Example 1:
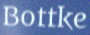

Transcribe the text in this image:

Bottke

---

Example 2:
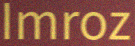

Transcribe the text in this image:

Imroz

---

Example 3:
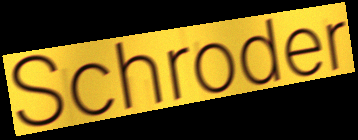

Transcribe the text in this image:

Schroder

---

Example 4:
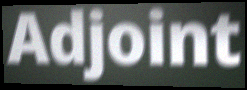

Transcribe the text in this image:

Adjoint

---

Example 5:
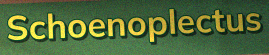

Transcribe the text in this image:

Schoenoplectus